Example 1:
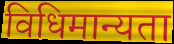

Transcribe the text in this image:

विधिमान्यता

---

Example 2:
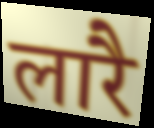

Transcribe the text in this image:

लारै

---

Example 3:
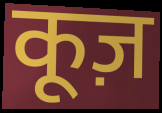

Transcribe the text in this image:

कूज़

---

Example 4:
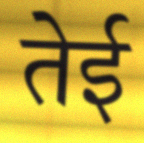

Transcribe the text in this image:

तेई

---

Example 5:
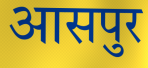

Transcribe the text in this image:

आसपुर